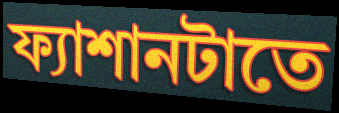
ফ্যাশানটাতে